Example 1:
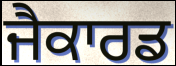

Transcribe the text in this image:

ਜੈਕਾਰਡ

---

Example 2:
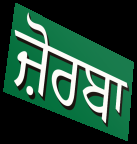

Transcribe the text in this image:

ਜ਼ੋਰਬਾ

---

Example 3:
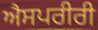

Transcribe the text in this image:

ਐਸਪਰੀਰੀ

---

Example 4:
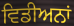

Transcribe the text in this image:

ਵਿਡੀਅਨਾਂ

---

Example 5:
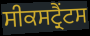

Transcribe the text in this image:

ਸੀਕਸਟ੍ਰੈਂਟਸ